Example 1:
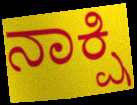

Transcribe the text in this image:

ನಾಕ್ಷಿ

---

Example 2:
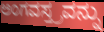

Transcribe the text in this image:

ಅಂಗವಸ್ತ್ರವನ್ನು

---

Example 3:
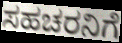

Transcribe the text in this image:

ಸಹಚರನಿಗೆ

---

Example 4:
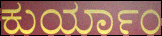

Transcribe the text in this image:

ಕುರ್ಯಾಂ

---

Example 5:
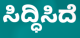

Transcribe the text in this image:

ಸಿದ್ಧಿಸಿದೆ